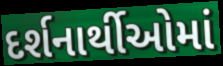
દર્શનાર્થીઓમાં